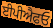
ਈਪੀਐਫਓ